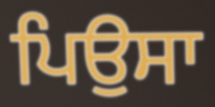
ਪਿਉਸਾ